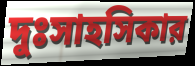
দুঃসাহসিকার